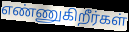
எண்ணுகிறீர்கள்